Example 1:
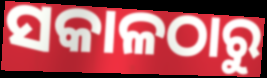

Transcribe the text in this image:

ସକାଳଠାରୁ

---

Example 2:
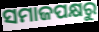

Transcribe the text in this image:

ସମାଜପକ୍ଷରୁ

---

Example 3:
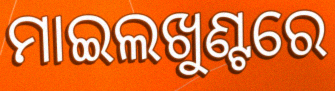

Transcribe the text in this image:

ମାଇଲଖୁଣ୍ଟରେ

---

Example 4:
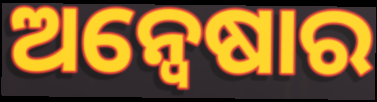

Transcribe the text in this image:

ଅନ୍ବେଷାର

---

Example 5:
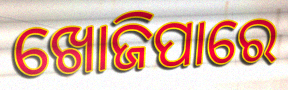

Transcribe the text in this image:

ଖୋଜିପାରେ